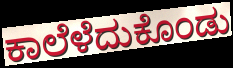
ಕಾಲೆಳೆದುಕೊಂಡು